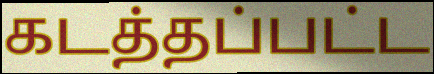
கடத்தப்பட்ட